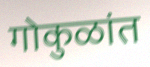
गोकुळांत